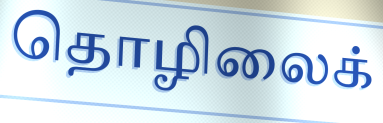
தொழிலைக்